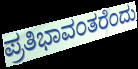
ಪ್ರತಿಭಾವಂತರೆಂದು